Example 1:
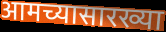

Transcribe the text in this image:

आमच्यासारख्या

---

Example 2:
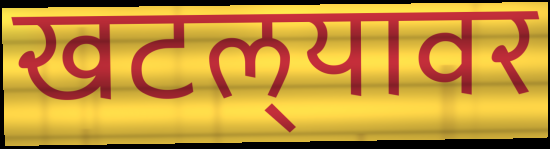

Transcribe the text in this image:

खटल्यावर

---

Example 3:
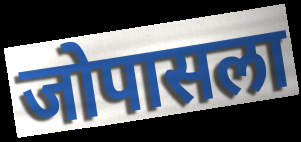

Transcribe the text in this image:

जोपासला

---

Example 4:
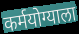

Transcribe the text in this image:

कर्मयोग्याला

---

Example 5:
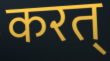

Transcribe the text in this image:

करत्